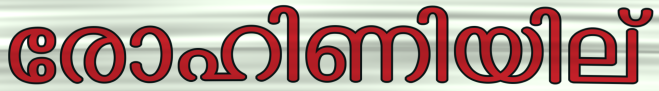
രോഹിണിയില്